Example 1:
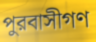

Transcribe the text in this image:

পুরবাসীগণ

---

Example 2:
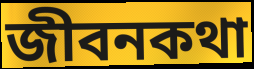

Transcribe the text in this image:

জীবনকথা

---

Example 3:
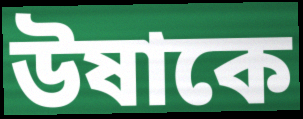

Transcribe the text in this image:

উষাকে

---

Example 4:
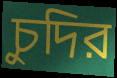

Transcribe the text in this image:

চুদির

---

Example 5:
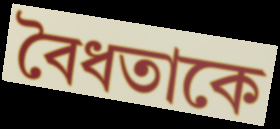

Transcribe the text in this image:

বৈধতাকে